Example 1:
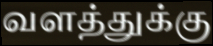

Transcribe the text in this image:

வளத்துக்கு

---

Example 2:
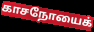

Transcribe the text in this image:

காசநோயைக்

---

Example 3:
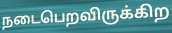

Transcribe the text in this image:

நடைபெறவிருக்கிற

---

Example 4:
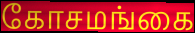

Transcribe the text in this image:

கோசமங்கை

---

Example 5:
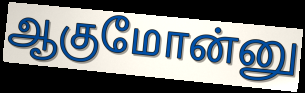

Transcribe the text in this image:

ஆகுமோன்னு